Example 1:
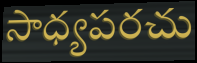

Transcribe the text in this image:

సాధ్యపరచు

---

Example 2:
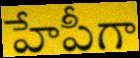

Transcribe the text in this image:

హేపీగా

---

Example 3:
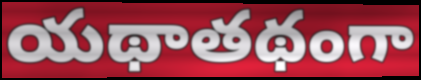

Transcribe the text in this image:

యథాతథంగా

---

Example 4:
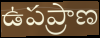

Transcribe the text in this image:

ఉపప్రాణ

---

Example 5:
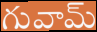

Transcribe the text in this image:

గువామ్